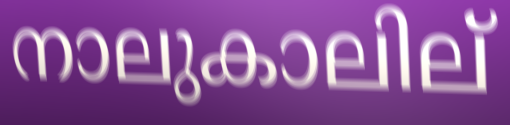
നാലുകാലില്